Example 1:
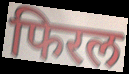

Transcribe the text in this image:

फिरल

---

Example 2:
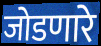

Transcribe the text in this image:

जोडणारे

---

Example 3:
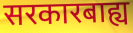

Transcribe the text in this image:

सरकारबाह्य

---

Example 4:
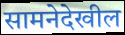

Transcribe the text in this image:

सामनेदेखील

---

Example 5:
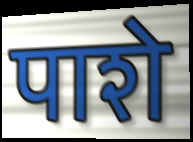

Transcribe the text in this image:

पाशे